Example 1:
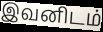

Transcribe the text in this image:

இவனிடம்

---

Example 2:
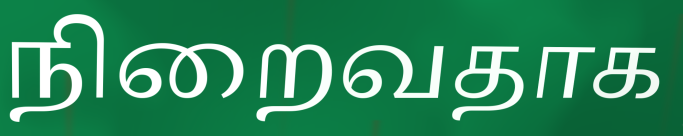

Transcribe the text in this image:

நிறைவதாக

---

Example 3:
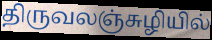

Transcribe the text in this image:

திருவலஞ்சுழியில்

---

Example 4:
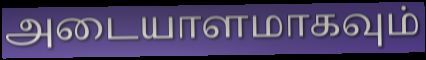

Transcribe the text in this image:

அடையாளமாகவும்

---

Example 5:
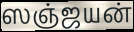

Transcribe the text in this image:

ஸஞ்ஜயன்